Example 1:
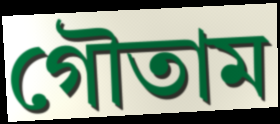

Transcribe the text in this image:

গৌতাম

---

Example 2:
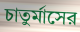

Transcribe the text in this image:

চাতুর্মাসের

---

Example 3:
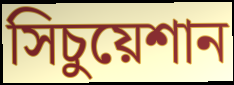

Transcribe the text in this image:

সিচুয়েশান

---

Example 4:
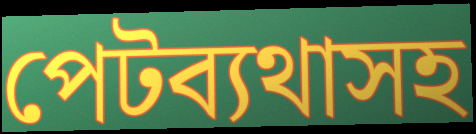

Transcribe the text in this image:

পেটব্যথাসহ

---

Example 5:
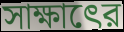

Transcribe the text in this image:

সাক্ষাৎের